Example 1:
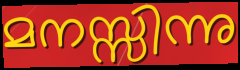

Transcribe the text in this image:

മനസ്സിന്നു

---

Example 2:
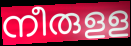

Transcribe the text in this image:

നീരുളള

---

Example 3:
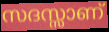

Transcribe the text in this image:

സദസ്സാണ്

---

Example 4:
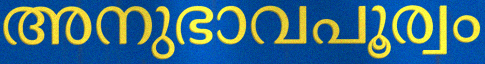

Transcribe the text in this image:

അനുഭാവപൂര്വം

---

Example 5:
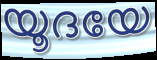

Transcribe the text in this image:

യൂദയേ